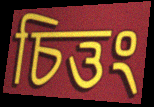
চিত্তং